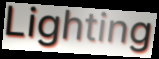
Lighting